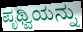
ಪೃಥ್ವಿಯನ್ನು